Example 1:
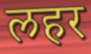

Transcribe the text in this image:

लहर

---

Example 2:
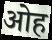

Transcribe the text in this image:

ओह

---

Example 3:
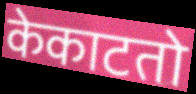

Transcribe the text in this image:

केकाटतो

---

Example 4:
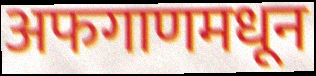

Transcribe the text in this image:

अफगाणमधून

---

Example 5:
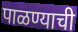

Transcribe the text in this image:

पाळण्याची